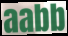
aabb